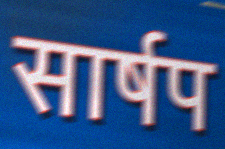
सार्षप